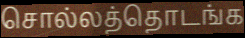
சொல்லத்தொடங்க